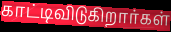
காட்டிவிடுகிறார்கள்